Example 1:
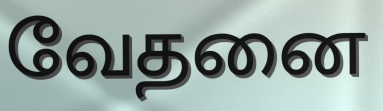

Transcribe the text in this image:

வேதனை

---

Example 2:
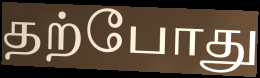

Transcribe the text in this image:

தற்போது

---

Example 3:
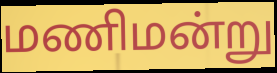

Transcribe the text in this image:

மணிமன்று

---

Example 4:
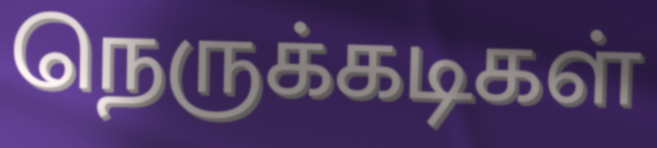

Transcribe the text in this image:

நெருக்கடிகள்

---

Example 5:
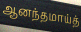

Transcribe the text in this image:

ஆனந்தமாய்த்